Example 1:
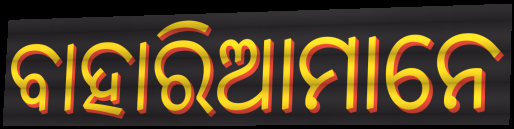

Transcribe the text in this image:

ବାହାରିଆମାନେ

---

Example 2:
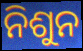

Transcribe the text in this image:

ନିଶୁନ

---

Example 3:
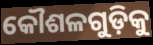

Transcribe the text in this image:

କୌଶଳଗୁଡ଼ିକୁ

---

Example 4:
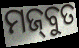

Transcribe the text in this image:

ମଜ୍‌ବୁତ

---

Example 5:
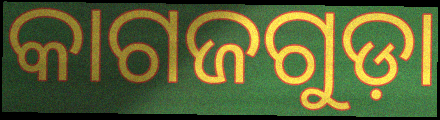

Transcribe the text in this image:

କାଗଜଗୁଡ଼ା